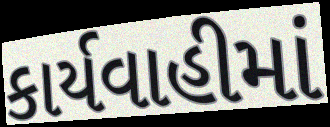
કાર્યવાહીમાં